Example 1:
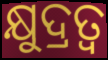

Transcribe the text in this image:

କ୍ଷୁଦ୍ରତ୍ୱ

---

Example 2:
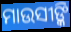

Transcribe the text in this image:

ମାଉସୀଙ୍କି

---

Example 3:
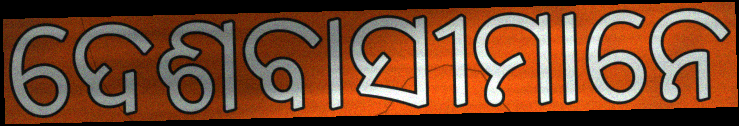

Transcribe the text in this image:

ଦେଶବାସୀମାନେ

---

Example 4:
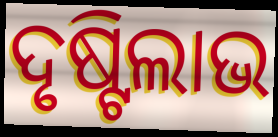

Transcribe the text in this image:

ଦୃଷ୍ଟିଲାଭ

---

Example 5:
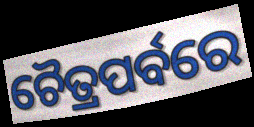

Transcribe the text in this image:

ଚୈତ୍ରପର୍ବରେ